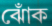
ঝোঁক